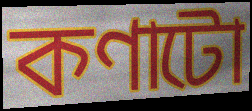
কণাটো